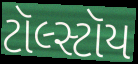
ટૉલ્સ્ટૉય